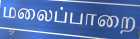
மலைப்பாறை